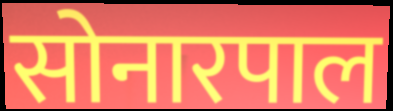
सोनारपाल